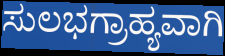
ಸುಲಭಗ್ರಾಹ್ಯವಾಗಿ